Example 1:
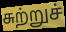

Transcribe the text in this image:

சுற்றுச்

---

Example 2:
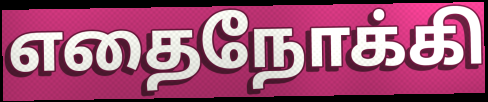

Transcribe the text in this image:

எதைநோக்கி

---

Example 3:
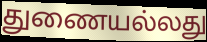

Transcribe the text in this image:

துணையல்லது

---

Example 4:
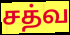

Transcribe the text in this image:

சத்வ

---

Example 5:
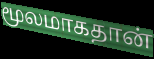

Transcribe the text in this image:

மூலமாகதான்